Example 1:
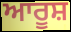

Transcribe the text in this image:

ਆਰੂਸ਼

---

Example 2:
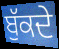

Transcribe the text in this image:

ਬੁੱਕਦੇ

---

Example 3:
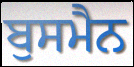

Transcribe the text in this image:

ਬੁਸਮੈਨ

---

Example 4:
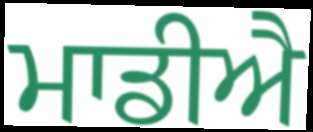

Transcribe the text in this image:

ਮਾਡੀਐ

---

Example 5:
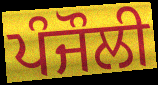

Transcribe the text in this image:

ਪੰਜੌਲੀ